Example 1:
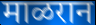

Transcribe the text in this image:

माळरान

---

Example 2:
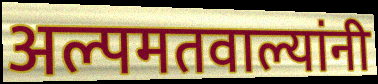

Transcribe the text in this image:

अल्पमतवाल्यांनी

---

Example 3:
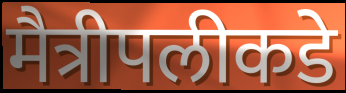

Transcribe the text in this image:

मैत्रीपलीकडे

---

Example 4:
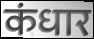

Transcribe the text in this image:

कंधार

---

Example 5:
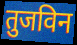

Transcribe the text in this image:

तुजविन